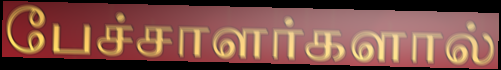
பேச்சாளர்களால்